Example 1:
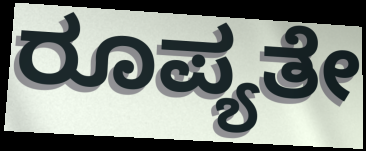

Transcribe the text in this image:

ರೂಪ್ಯತೇ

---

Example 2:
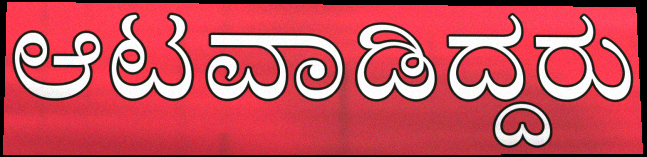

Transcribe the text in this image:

ಆಟವಾಡಿದ್ದರು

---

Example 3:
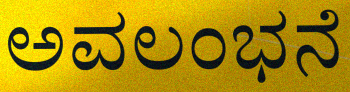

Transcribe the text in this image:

ಅವಲಂಭನೆ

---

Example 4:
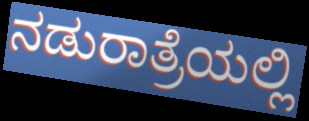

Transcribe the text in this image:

ನಡುರಾತ್ರೆಯಲ್ಲಿ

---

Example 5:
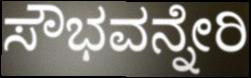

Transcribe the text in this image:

ಸೌಭವನ್ನೇರಿ